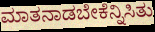
ಮಾತನಾಡಬೇಕೆನ್ನಿಸಿತು